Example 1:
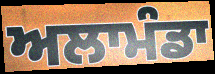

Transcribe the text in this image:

ਅਲਾਮੰਡਾ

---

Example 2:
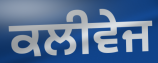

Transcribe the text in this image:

ਕਲੀਵੇਜ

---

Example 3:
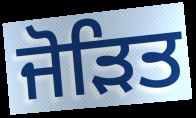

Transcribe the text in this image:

ਜੋੜਿਤ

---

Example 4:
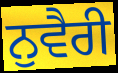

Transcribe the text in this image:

ਨੁਵੈਰੀ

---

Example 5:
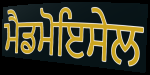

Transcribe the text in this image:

ਮੈਡਮੋਇਸੇਲ